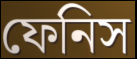
ফেনিস